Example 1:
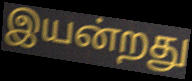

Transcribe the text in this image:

இயன்றது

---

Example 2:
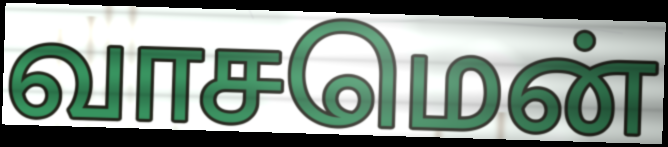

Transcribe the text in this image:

வாசமென்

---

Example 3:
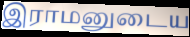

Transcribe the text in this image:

இராமனுடைய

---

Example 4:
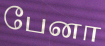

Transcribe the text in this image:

பேனா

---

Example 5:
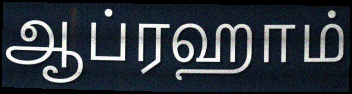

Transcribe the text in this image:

ஆப்ரஹாம்